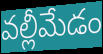
వల్లీమేడం